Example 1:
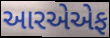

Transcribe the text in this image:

આરએએફ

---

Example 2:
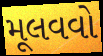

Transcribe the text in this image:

મૂલવવો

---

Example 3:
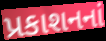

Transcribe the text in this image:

પ્રકાશનનાં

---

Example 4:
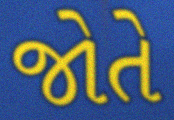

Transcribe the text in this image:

જોતે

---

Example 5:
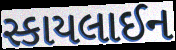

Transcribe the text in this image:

સ્કાયલાઈન